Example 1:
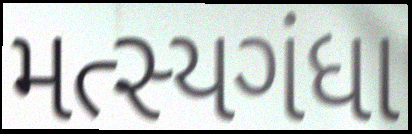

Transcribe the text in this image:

મત્સ્યગંધા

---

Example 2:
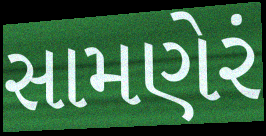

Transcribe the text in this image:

સામણેરં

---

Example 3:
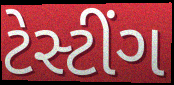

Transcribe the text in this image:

ટેસ્ટીંગ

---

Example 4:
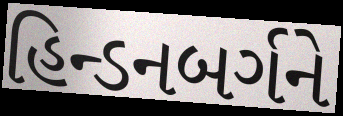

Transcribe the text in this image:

હિન્ડનબર્ગને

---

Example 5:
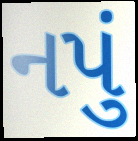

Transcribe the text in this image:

નપું